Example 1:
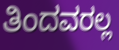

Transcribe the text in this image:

ತಿಂದವರಲ್ಲ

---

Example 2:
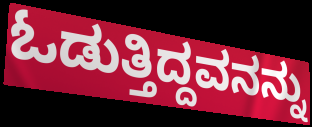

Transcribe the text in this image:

ಓಡುತ್ತಿದ್ದವನನ್ನು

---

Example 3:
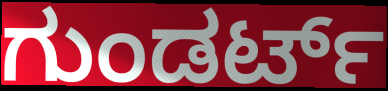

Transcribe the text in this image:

ಗುಂಡರ್ಟ್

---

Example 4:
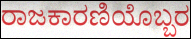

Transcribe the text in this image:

ರಾಜಕಾರಣಿಯೊಬ್ಬರ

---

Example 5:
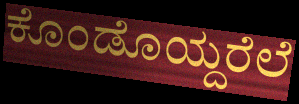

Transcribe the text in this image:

ಕೊಂಡೊಯ್ದರೆಲೆ